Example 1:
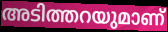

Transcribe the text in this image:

അടിത്തറയുമാണ്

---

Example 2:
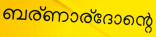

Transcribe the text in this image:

ബര്ണാര്ദോന്റെ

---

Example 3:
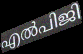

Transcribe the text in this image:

എൽപിജി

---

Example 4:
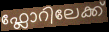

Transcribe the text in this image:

ഫ്ലോറിലേക്ക്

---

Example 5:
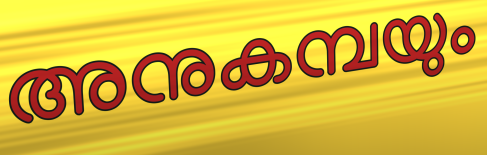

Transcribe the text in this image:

അനുകമ്പയും